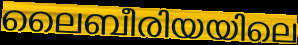
ലൈബീരിയയിലെ